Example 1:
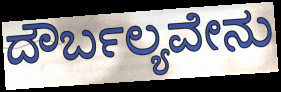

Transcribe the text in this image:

ದೌರ್ಬಲ್ಯವೇನು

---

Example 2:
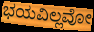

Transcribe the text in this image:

ಭಯವಿಲ್ಲವೋ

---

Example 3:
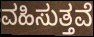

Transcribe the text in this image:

ವಹಿಸುತ್ತವೆ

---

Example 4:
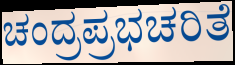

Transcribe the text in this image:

ಚಂದ್ರಪ್ರಭಚರಿತೆ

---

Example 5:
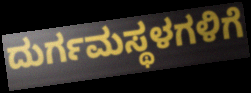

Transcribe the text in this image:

ದುರ್ಗಮಸ್ಥಳಗಳಿಗೆ